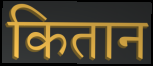
कितान